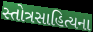
સ્તોત્રસાહિત્યના